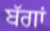
ਬੱਗਾਂ